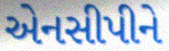
એનસીપીને